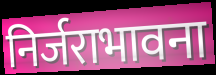
निर्जराभावना